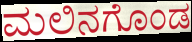
ಮಲಿನಗೊಂಡ